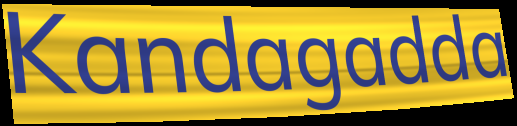
Kandagadda